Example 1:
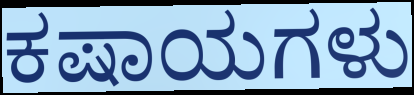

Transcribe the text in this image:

ಕಷಾಯಗಳು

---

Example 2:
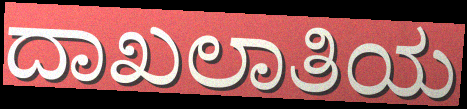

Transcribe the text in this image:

ದಾಖಲಾತಿಯ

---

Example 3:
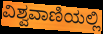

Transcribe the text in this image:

ವಿಶ್ವವಾಣಿಯಲ್ಲಿ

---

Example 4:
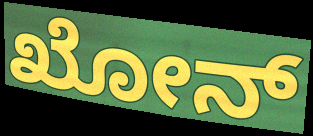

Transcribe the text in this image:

ಖೋನ್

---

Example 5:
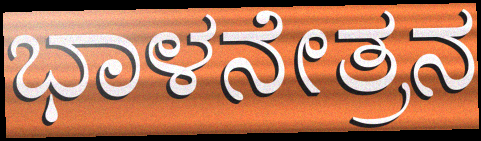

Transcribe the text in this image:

ಭಾಳನೇತ್ರನ